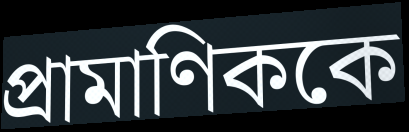
প্রামাণিককে